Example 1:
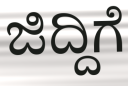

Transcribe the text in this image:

ಜಿದ್ದಿಗೆ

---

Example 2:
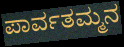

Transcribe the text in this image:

ಪಾರ್ವತಮ್ಮನ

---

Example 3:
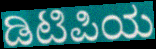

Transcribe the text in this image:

ಡಿಟಿಪಿಯ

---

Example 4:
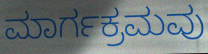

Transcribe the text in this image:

ಮಾರ್ಗಕ್ರಮವು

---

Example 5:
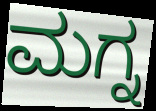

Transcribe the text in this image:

ಮಗ್ನ